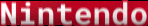
Nintendo